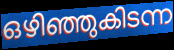
ഒഴിഞ്ഞുകിടന്ന